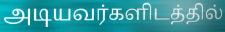
அடியவர்களிடத்தில்